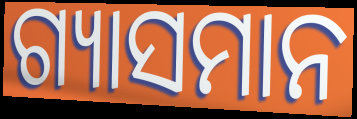
ଗ୍ୟାସମାନ